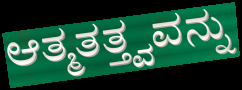
ಆತ್ಮತತ್ತ್ವವನ್ನು